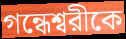
গন্ধেশ্বরীকে